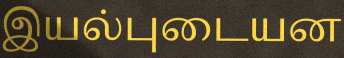
இயல்புடையன